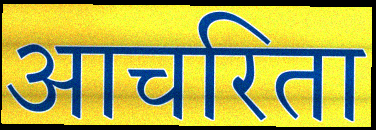
आचरिता